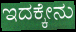
ಇದಕ್ಕೇನು